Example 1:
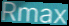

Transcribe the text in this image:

Rmax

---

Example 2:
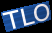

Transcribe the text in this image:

TLO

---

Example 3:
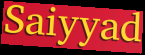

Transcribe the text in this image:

Saiyyad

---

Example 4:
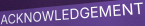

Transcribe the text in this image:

ACKNOWLEDGEMENT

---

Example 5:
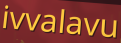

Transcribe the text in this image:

ivvalavu